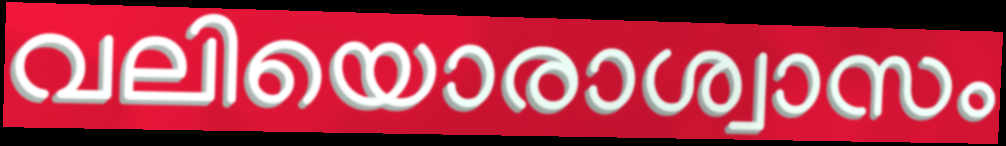
വലിയൊരാശ്വാസം